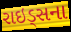
રાઇડ્સના